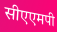
सीएएमपी